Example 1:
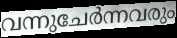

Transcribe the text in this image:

വന്നുചേർന്നവരും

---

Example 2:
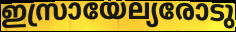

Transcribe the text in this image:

ഇസ്രായേല്യരോടു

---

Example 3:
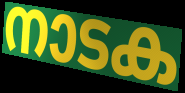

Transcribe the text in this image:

നാടക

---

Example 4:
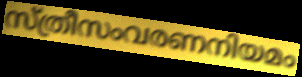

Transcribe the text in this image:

സ്ത്രീസംവരണനിയമം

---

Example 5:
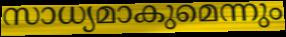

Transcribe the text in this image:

സാധ്യമാകുമെന്നും